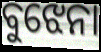
ବୁଝେନା